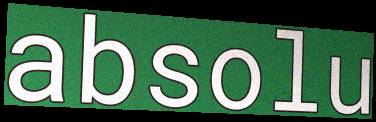
absolu